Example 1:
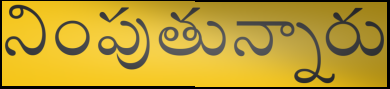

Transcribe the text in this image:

నింపుతున్నారు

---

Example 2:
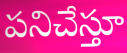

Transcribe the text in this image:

పనిచేస్తూ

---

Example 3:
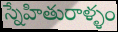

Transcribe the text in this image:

స్నేహితురాళ్ళం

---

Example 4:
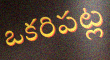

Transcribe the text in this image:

ఒకరిపట్ల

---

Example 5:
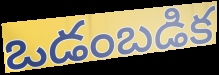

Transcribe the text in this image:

ఒడంబడిక